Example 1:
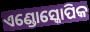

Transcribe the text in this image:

ଏଣ୍ଡୋସ୍କୋପିକ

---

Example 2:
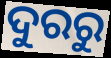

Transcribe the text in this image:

ଦୁରରୁ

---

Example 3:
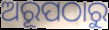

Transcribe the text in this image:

ଅରୂପଠାରୁ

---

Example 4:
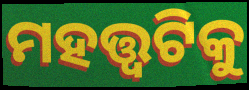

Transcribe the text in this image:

ମହତ୍ତ୍ୱଟିକୁ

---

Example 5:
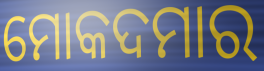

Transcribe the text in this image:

ମୋକଦମାର